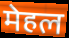
मेहल